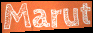
Marut